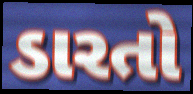
ડારતો